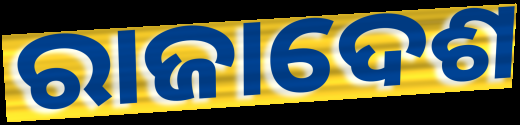
ରାଜାଦେଶ